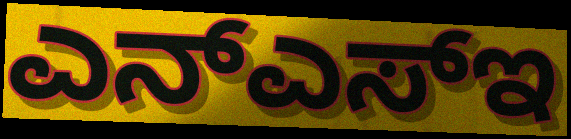
ಎನ್ಎಸ್ಇ